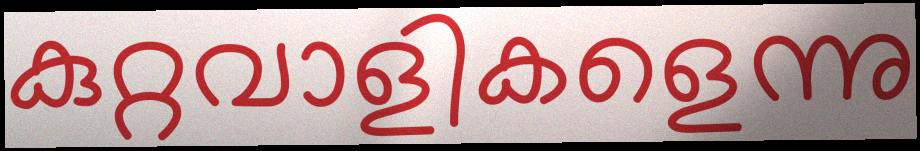
കുറ്റവാളികളെന്നു